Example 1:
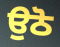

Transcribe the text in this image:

ਉਠੋ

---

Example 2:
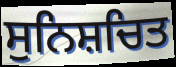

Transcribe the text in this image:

ਸੁਨਿਸ਼ਚਿਤ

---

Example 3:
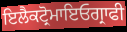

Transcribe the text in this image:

ਇਲੈਕਟ੍ਰੋਮਾਇਓਗ੍ਰਾਫੀ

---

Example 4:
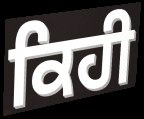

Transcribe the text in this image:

ਕਿਹੀ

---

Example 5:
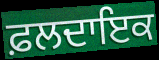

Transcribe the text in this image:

ਫ਼ਲਦਾਇਕ